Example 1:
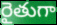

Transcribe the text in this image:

రైతుగా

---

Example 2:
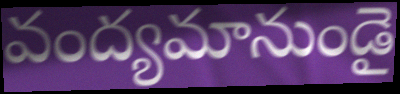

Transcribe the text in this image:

వంద్యమానుండై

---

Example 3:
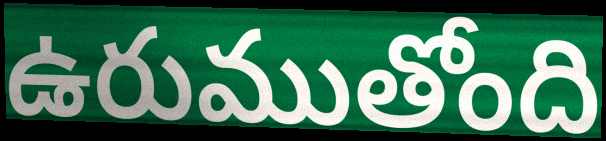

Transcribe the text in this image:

ఉరుముతోంది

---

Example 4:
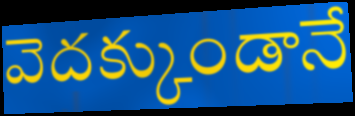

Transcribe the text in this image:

వెదక్కుండానే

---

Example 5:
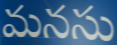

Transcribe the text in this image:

మనసు